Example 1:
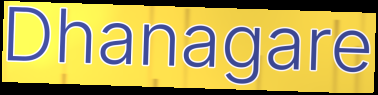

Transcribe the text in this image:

Dhanagare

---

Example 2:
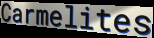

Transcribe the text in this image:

Carmelites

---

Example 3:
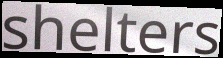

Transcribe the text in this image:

shelters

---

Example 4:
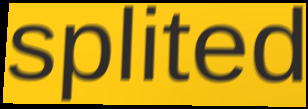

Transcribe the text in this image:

splited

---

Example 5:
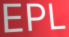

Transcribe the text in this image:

EPL